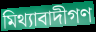
মিথ্যাবাদীগণ